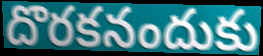
దొరకనందుకు